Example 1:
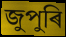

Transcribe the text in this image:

জুপুৰি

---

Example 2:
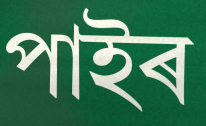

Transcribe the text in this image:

পাইৰ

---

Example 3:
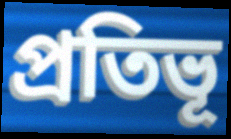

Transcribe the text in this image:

প্ৰতিভূ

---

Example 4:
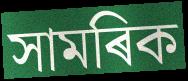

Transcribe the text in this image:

সামৰিক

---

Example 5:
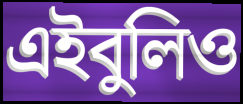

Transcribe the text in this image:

এইবুলিও